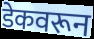
डेकवरून